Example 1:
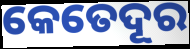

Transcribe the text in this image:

କେତେଦୂର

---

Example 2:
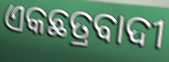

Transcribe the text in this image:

ଏକଛତ୍ରବାଦୀ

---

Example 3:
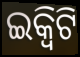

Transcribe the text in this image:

ଇକ୍ବିଟି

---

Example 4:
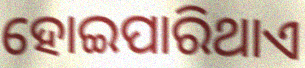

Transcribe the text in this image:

ହୋଇପାରିଥାଏ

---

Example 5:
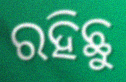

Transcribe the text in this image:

ରହିଛୁ